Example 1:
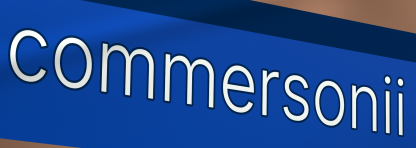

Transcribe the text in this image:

commersonii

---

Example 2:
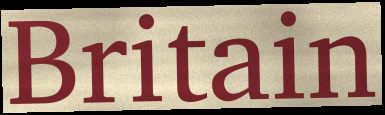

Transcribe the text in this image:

Britain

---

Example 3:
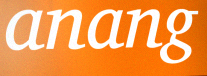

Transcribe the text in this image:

anang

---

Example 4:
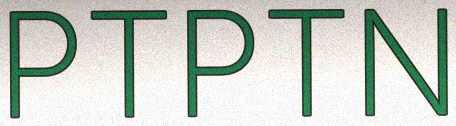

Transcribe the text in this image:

PTPTN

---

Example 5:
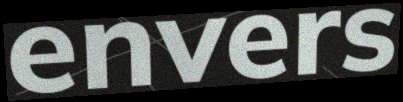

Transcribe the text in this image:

envers